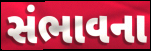
સંભાવના